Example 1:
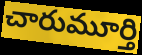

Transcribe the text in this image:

చారుమూర్తి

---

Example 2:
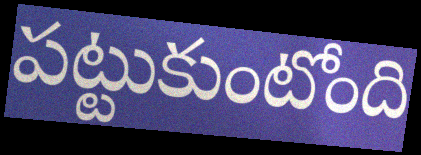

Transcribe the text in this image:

పట్టుకుంటోంది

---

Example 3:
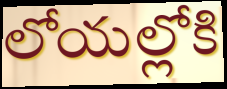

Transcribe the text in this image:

లోయల్లోకి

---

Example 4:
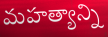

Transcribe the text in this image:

మహత్యాన్ని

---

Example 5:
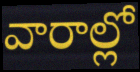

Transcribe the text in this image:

వారాల్లో